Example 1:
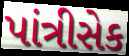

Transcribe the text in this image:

પાંત્રીસેક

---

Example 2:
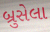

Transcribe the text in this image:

બ્રુસેલા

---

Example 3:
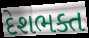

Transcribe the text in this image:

દેશભક્ત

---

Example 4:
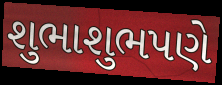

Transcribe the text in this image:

શુભાશુભપણે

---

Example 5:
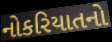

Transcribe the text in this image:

નોકરિયાતનો